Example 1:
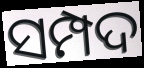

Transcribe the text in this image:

ସମ୍ପଦ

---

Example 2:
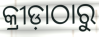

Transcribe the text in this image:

କ୍ରୀଡ଼ାଠାରୁ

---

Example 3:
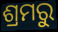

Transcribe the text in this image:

ଶ୍ରମରୁ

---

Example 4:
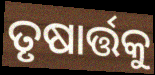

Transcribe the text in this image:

ତୃଷାର୍ତ୍ତକୁ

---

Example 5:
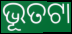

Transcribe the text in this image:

ଭୂତଟା